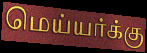
மெய்யர்க்கு